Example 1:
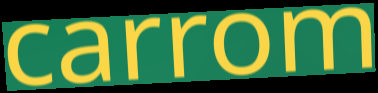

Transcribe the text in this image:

carrom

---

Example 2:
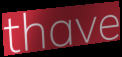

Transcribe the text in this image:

thave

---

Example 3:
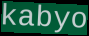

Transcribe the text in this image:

kabyo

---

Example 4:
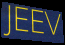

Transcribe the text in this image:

JEEV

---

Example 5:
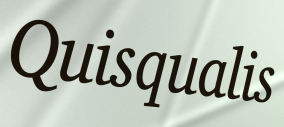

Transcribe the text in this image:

Quisqualis